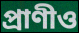
প্রাণীও